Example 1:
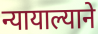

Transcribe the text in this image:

न्यायाल्याने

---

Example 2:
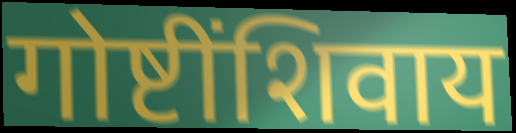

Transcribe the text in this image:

गोष्टींशिवाय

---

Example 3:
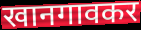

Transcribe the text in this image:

खानगावकर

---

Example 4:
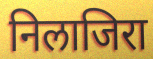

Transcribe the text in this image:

निलाजिरा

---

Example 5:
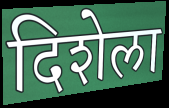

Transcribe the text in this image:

दिशेला